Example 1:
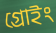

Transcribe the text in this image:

গ্রোইং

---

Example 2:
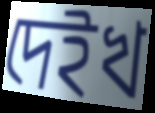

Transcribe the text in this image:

দেইখ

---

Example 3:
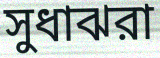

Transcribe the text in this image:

সুধাঝরা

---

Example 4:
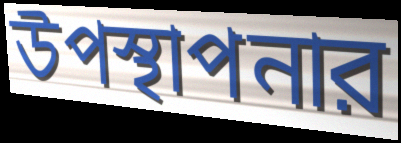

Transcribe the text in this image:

উপস্থাপনার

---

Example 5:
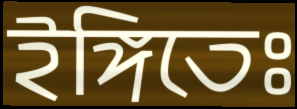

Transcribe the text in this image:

ইঙ্গিতেঃ